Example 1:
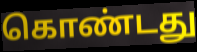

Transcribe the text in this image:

கொண்டது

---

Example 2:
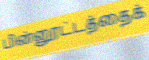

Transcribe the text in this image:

பின்னூட்டத்தைக்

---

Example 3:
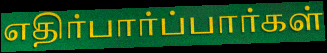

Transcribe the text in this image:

எதிர்பார்ப்பார்கள்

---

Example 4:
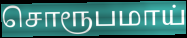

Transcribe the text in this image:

சொரூபமாய்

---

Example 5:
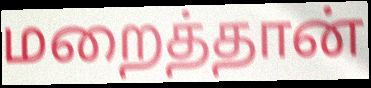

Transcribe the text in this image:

மறைத்தான்